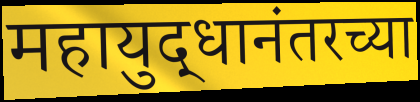
महायुद्धानंतरच्या